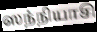
ஸந்நியாசி